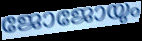
ജോജോയും